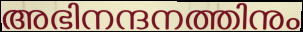
അഭിനന്ദനത്തിനും